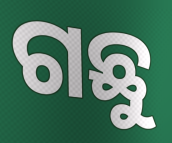
ଗଛୁ